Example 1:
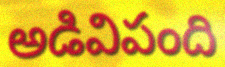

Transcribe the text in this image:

అడివిపంది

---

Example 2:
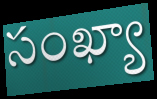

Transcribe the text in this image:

సంఖ్యా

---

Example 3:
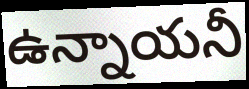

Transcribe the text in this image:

ఉన్నాయనీ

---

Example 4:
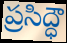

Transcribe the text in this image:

ప్రసిద్ధౌ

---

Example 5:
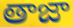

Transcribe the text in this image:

తాజా